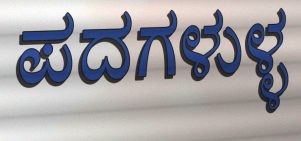
ಪದಗಳುಳ್ಳ